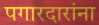
पगारदारांना